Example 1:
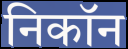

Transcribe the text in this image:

निकॉन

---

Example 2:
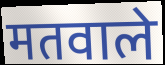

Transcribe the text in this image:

मतवाले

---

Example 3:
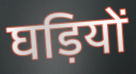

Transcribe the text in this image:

घड़ियों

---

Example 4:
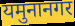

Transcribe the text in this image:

यमुनानगर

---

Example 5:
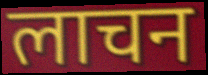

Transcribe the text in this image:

लाचन